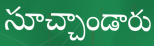
సూచ్చాండారు